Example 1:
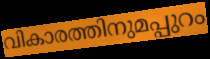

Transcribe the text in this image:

വികാരത്തിനുമപ്പുറം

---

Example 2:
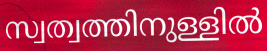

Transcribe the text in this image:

സ്വത്വത്തിനുള്ളിൽ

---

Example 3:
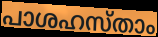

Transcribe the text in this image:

പാശഹസ്താം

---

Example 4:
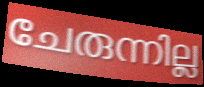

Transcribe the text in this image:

ചേരുന്നില്ല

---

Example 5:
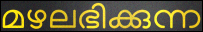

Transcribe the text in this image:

മഴലഭിക്കുന്ന